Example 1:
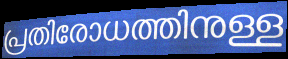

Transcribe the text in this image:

പ്രതിരോധത്തിനുള്ള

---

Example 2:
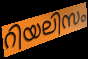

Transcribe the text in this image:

റിയലിസം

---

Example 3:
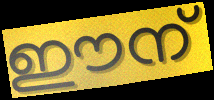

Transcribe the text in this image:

ഈന്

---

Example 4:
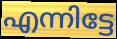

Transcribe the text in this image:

എന്നിട്ടേ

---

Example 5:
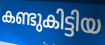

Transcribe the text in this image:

കണ്ടുകിട്ടിയ